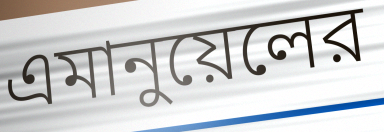
এমানুয়েলের